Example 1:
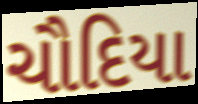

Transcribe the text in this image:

ચૌદિયા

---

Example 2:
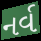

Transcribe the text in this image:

નર્વ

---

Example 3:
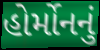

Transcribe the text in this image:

હોર્મોનનું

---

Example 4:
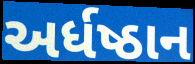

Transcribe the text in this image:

અર્ધષ્ઠાન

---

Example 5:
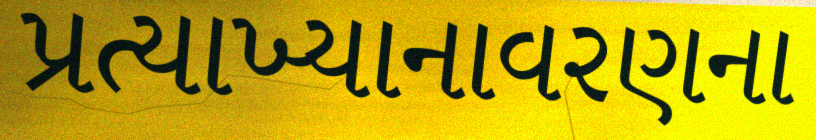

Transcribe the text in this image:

પ્રત્યાખ્યાનાવરણના